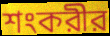
শংকরীর